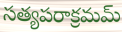
సత్యపరాక్రమమ్